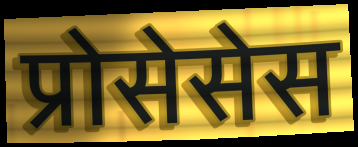
प्रोसेसेस